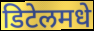
डिटेलमधे